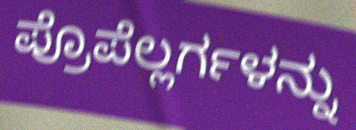
ಪ್ರೊಪೆಲ್ಲರ್ಗಳನ್ನು